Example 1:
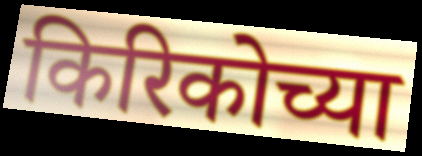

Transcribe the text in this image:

किरिकोच्या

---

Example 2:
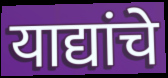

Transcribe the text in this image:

याद्यांचे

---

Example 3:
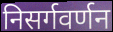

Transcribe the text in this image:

निसर्गवर्णन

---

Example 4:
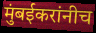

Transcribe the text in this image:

मुंबईकरांनीच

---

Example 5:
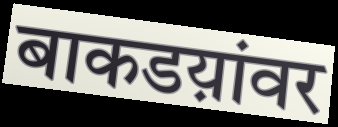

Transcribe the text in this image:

बाकडय़ांवर